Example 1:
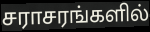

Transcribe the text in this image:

சராசரங்களில்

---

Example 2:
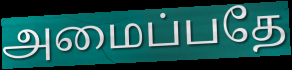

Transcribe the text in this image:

அமைப்பதே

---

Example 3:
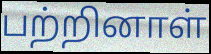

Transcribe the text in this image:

பற்றினாள்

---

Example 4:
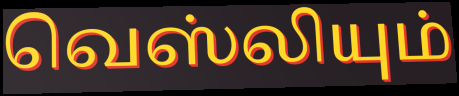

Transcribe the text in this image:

வெஸ்லியும்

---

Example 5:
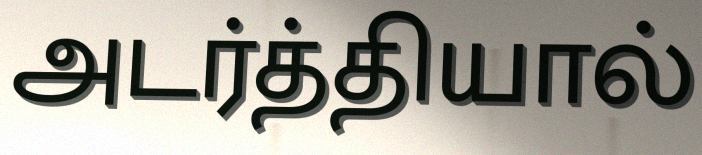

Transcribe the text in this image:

அடர்த்தியால்